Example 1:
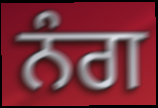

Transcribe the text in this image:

ਨੰਗ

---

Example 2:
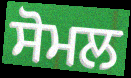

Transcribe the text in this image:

ਸੋਮਲ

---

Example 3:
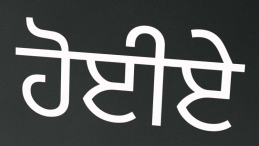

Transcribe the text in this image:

ਹੋਈਏ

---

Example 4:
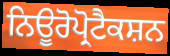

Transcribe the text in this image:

ਨਿਊਰੋਪ੍ਰੋਟੈਕਸ਼ਨ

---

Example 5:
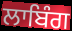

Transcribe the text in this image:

ਲਾਬਿੰਗ